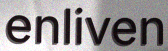
enliven